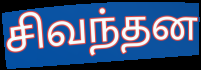
சிவந்தன